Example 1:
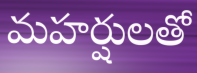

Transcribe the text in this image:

మహర్షులతో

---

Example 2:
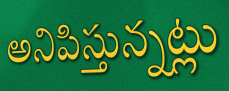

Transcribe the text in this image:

అనిపిస్తున్నట్లు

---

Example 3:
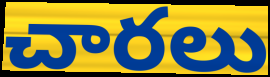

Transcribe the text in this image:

చారలు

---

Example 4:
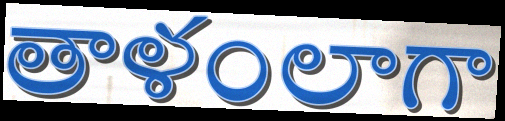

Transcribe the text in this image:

తాళంలాగా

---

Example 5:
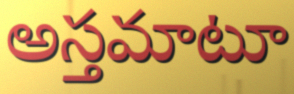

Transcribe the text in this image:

అస్తమాటూ